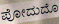
ಪೋದುದೊ